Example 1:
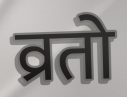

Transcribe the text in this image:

व्रतो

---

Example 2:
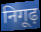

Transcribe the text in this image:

निगूढ़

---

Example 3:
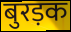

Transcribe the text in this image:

बुरड़क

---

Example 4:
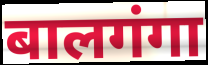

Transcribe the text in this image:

बालगंगा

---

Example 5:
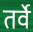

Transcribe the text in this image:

तर्वे